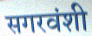
सगरवंशी